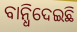
ବାନ୍ଧିଦେଇଛି